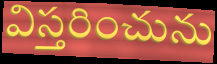
విస్తరించును